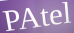
PAtel